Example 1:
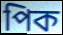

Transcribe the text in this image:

পিক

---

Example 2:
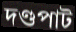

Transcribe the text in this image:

দণ্ডপাট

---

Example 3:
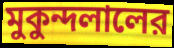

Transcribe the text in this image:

মুকুন্দলালের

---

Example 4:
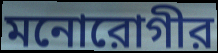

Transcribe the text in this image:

মনোরোগীর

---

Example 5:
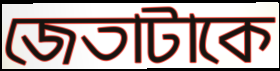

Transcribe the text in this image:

জেতাটাকে